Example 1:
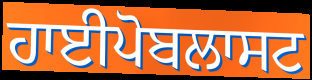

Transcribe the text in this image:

ਹਾਈਪੋਬਲਾਸਟ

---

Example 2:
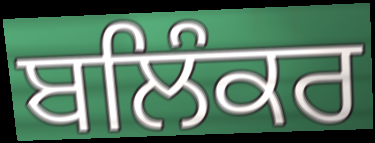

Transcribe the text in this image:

ਬਲਿੰਕਰ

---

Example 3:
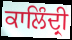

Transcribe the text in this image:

ਕਾਲਿੰਦ੍ਰੀ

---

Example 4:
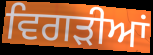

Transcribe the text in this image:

ਵਿਗੜੀਆਂ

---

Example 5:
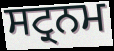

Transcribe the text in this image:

ਸਟ੍ਰਨਮ